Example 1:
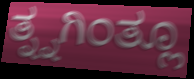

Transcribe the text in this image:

ತ್ನ್ನಗಿಂತ್ಲೂ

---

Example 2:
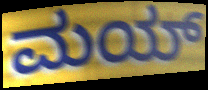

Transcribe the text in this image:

ಮಯ್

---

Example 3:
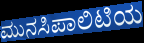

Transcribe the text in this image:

ಮುನಸಿಪಾಲಿಟಿಯ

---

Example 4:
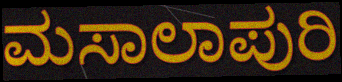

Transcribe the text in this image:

ಮಸಾಲಾಪುರಿ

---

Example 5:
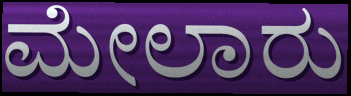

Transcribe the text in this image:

ಮೇಲಾರು